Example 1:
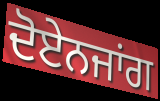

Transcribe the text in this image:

ਦੋਏਨਜਾਂਗ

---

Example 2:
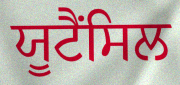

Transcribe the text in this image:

ਯੂਟੈਂਸਿਲ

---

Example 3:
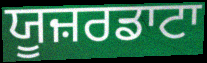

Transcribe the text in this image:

ਯੂਜ਼ਰਡਾਟਾ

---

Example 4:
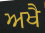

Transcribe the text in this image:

ਅਖੈ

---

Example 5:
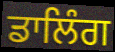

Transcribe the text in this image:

ਡਾਲਿੰਗ